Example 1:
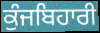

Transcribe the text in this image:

ਕੁੰਜਬਿਹਾਰੀ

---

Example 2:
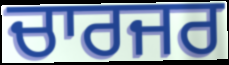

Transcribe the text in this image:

ਚਾਰਜਰ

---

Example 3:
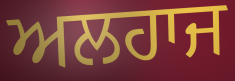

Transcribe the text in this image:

ਅਲਹਾਜ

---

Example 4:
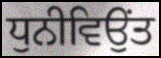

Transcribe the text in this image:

ਧੁਨੀਵਿਉਂਤ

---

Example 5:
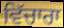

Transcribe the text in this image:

ਵਿੱਚਾਰਾ